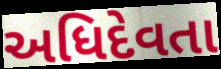
અધિદેવતા